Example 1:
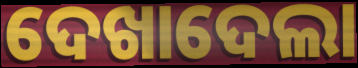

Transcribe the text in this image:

ଦେଖାଦେଲା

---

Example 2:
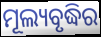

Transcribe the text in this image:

ମୂଲ୍ୟବୃଦ୍ଧିର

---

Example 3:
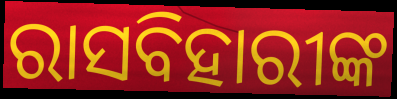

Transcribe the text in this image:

ରାସବିହାରୀଙ୍କ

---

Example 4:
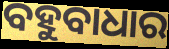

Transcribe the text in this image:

ବହୁବାଧାର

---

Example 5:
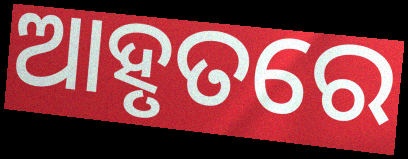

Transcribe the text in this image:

ଆହୃତରେ